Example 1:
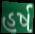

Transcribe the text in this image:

હર્ષ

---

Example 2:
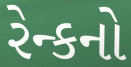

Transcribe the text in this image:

રેન્કનો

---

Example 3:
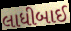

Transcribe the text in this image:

લાધીબાઈ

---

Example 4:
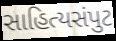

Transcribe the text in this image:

સાહિત્યસંપુટ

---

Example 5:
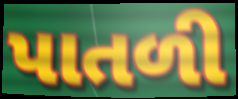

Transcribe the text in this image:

પાતળી